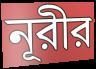
নূরীর